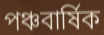
পঞ্চবার্ষিক